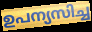
ഉപന്യസിച്ച